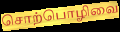
சொற்பொழிவை